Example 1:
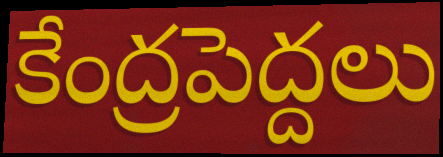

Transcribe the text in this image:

కేంద్రపెద్దలు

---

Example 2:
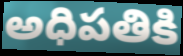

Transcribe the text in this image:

అధిపతికి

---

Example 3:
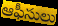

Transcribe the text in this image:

ఆఫీసులు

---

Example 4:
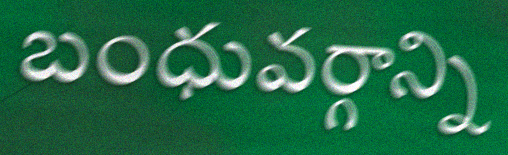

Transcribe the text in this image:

బంధువర్గాన్ని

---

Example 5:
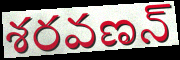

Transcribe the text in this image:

శరవణన్